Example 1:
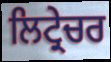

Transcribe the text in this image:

ਲਿਟ੍ਰੇਚਰ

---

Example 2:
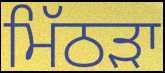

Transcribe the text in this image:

ਮਿੱਠੜਾ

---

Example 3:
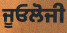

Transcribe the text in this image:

ਜੂਓਲੋਜੀ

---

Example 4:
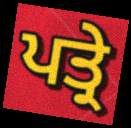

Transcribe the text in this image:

ਪਤ੍ਰੇ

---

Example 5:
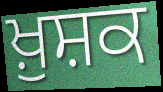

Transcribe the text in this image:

ਖ਼ੁਸ਼ਕ